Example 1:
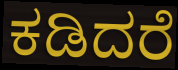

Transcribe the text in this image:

ಕಡಿದರೆ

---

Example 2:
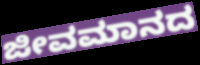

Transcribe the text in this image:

ಜೀವಮಾನದ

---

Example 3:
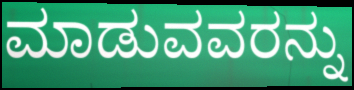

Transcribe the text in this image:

ಮಾಡುವವರನ್ನು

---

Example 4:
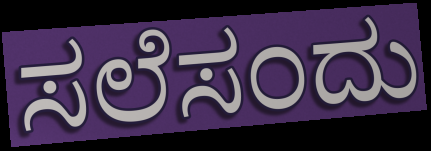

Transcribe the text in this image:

ಸಲೆಸಂದು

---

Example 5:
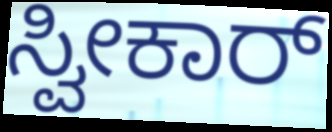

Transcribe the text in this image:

ಸ್ವೀಕಾರ್